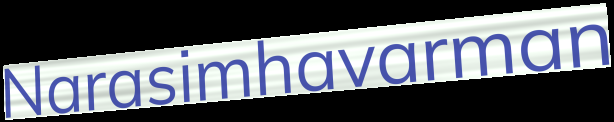
Narasimhavarman